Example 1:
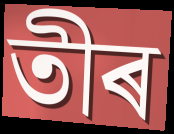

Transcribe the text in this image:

তীৰ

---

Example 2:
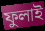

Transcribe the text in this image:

ফুলাই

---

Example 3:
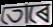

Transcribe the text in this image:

তোৰে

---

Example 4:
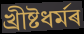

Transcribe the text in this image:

খ্ৰীষ্টধৰ্মৰ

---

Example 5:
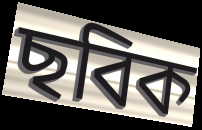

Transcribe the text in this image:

ছবিক